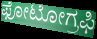
ಫೋಟೋಗ್ರಫಿ